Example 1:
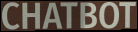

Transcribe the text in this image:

CHATBOT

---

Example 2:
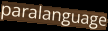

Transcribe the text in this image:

paralanguage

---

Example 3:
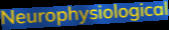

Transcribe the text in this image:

Neurophysiological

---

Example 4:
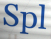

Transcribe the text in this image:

Spl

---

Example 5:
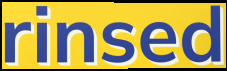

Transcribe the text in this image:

rinsed